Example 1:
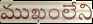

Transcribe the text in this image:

ముఖంలేని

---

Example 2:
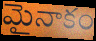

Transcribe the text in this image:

మైనాకం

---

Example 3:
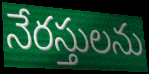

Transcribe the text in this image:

నేరస్తులను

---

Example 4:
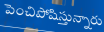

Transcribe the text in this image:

పెంచిపోషిస్తున్నారు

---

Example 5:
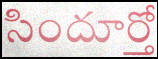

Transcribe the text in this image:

సిందూర్తో